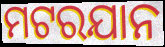
ମଟରଯାନ